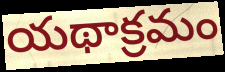
యథాక్రమం